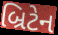
બ્રિટેન